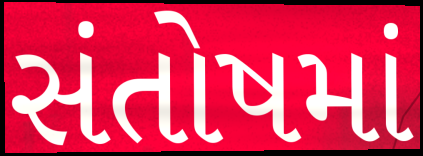
સંતોષમાં